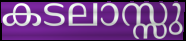
കടലാസ്സു